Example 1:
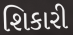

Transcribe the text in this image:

શિકારી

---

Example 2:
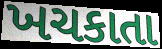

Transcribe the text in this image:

ખચકાતા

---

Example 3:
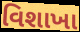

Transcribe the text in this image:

વિશાખા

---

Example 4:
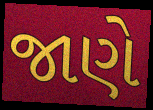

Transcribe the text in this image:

જાણે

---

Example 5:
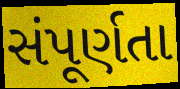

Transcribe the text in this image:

સંપૂર્ણતા